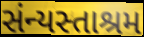
સંન્યસ્તાશ્રમ